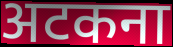
अटकना